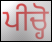
ਪੀਚ੍ਹੋ